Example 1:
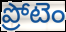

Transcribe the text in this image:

ప్రోటెం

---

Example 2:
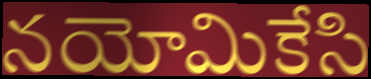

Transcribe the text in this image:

నయోమికేసి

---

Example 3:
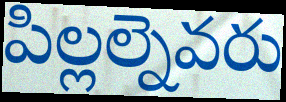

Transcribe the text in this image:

పిల్లల్నెవరు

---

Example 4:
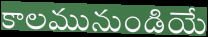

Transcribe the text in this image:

కాలమునుండియే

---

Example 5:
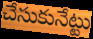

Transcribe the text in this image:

చేసుకునేట్టు